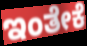
ಇಂತೇಕೆ